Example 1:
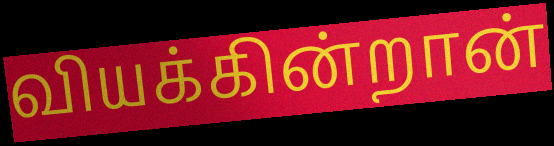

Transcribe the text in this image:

வியக்கின்றான்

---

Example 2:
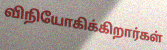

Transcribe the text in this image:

விநியோகிக்கிறார்கள்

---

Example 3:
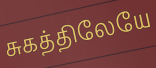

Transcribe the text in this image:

சுகத்திலேயே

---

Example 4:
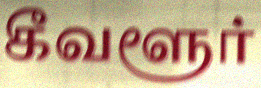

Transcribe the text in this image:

கீவளூர்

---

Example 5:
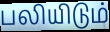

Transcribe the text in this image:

பலியிடும்